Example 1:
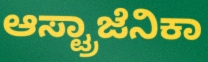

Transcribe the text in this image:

ಆಸ್ಟ್ರಾಜೆನಿಕಾ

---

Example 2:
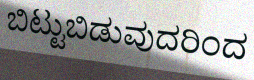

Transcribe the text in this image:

ಬಿಟ್ಟುಬಿಡುವುದರಿಂದ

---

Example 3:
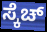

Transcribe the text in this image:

ಸ್ಕೆಚ್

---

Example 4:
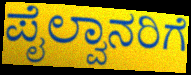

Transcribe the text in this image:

ಪೈಲ್ವಾನರಿಗೆ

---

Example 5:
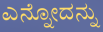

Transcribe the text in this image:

ಎನ್ನೋದನ್ನು